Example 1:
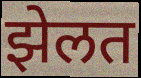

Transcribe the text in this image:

झेलत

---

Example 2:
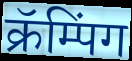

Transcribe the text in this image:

क्रॅम्पिंग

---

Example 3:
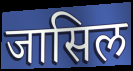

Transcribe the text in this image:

जासिल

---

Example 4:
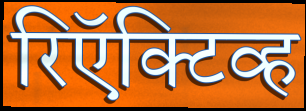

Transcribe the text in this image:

रिऍक्टिव्ह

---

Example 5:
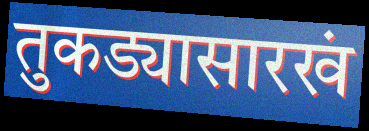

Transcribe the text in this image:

तुकड्यासारखं